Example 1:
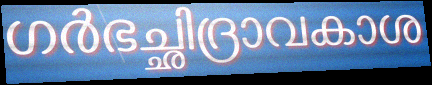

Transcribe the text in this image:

ഗർഭച്ഛിദ്രാവകാശ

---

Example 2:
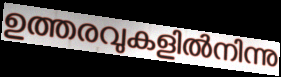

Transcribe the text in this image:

ഉത്തരവുകളിൽനിന്നു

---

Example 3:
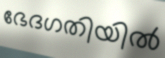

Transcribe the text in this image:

ഭേദഗതിയിൽ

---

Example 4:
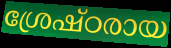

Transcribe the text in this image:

ശ്രേഷ്ഠരായ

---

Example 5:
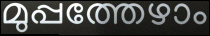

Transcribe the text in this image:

മുപ്പത്തേഴാം